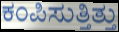
ಕಂಪಿಸುತ್ತಿತ್ತು